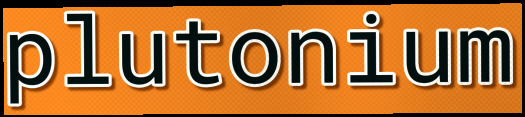
plutonium